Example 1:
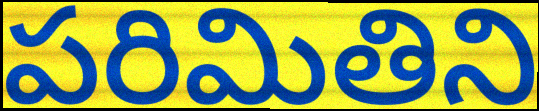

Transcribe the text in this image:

పరిమితిని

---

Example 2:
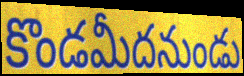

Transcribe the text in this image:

కొండమీదనుండు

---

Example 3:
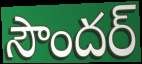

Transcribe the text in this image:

సౌందర్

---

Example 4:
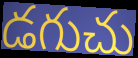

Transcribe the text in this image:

డగుచు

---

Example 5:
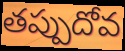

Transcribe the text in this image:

తప్పుదోవ